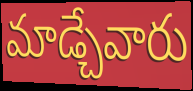
మాడ్చేవారు